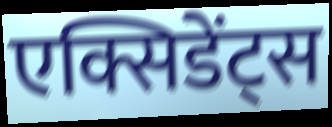
एक्सिडेंट्स